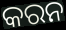
କରନ